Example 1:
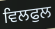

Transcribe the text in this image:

ਵਿਲਫੁਲ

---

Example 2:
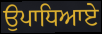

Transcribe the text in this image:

ਉਪਾਧਿਆਏ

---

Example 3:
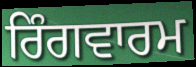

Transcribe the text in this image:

ਰਿੰਗਵਾਰਮ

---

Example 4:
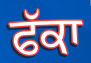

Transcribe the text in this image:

ਫੱਕਾ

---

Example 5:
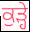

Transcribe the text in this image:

ਕੁੜ੍ਹੇ